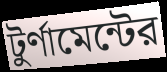
টুর্ণামেন্টের